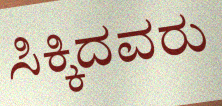
ಸಿಕ್ಕಿದವರು